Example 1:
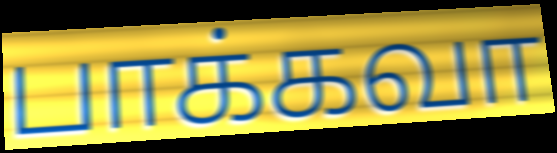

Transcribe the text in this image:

பாக்கவா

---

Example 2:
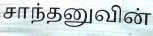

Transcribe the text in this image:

சாந்தனுவின்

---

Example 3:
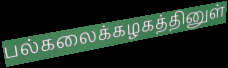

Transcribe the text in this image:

பல்கலைக்கழகத்தினுள்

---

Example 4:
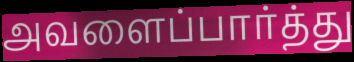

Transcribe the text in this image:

அவளைப்பார்த்து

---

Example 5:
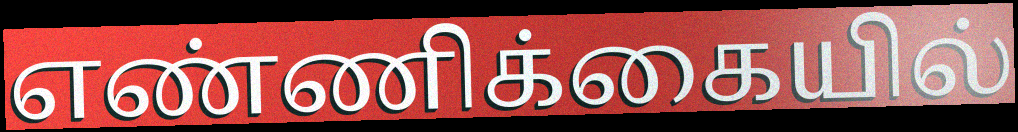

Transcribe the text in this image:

எண்ணிக்கையில்